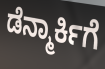
ಡೆನ್ಮಾರ್ಕಿಗೆ